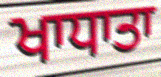
ਖਾਧਾਤਾ